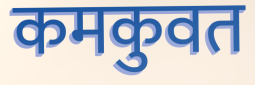
कमकुवत